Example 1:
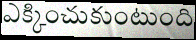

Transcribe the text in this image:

ఎక్కించుకుంటుంది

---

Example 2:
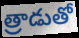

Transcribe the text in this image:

త్రాడుతో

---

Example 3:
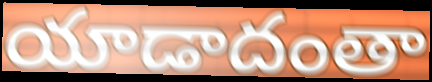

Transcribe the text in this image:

యాడాదంతా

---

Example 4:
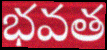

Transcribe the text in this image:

భవత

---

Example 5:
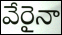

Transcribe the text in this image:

వేరైనా